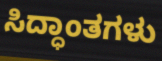
ಸಿದ್ಧಾಂತಗಳು